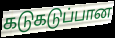
கடுகடுப்பான